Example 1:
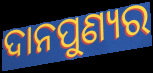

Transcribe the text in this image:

ଦାନପୁଣ୍ୟର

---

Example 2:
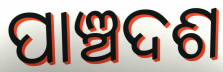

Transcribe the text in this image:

ପାଞ୍ଚଦଶ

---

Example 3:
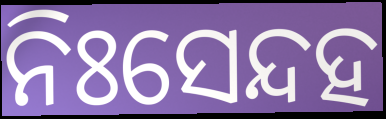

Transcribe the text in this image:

ନିଃସେନ୍ଦହ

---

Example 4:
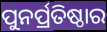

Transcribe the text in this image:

ପୁନର୍ପ୍ରତିଷ୍ଠାର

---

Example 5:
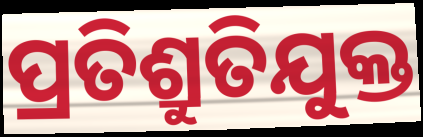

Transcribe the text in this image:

ପ୍ରତିଶ୍ରୁତିଯୁକ୍ତ